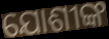
ଯୋଶୀଙ୍କ